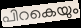
പിറകെയും